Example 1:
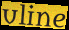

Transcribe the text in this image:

uline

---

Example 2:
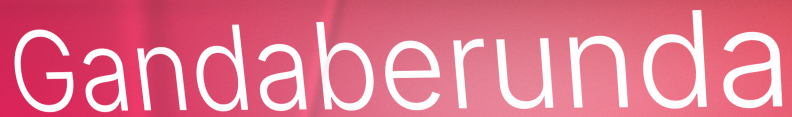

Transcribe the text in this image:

Gandaberunda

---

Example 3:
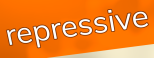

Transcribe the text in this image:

repressive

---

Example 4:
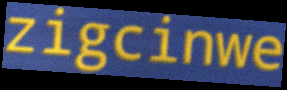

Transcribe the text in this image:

zigcinwe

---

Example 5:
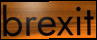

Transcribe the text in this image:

brexit